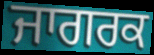
ਜਾਗਰਕ